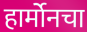
हार्मोनचा